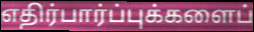
எதிர்பார்ப்புக்களைப்